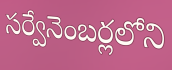
సర్వేనెంబర్లలోని